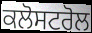
ਕਲੋਸਟਰੋਲ